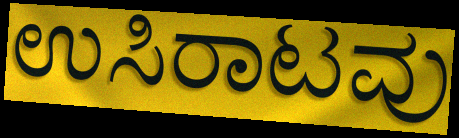
ಉಸಿರಾಟವು